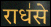
राध॑से